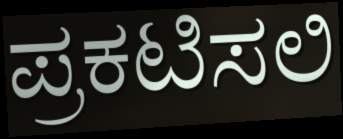
ಪ್ರಕಟಿಸಲಿ